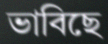
ভাবিছে